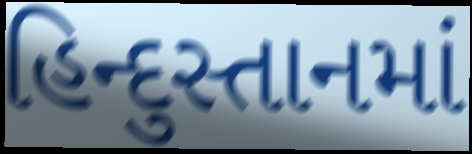
હિન્દુસ્તાનમાં